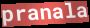
pranala